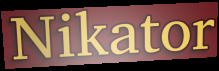
Nikator